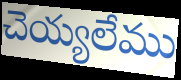
చెయ్యలేము